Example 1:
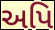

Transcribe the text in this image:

અપિ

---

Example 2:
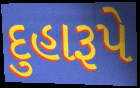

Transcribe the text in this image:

દુહારૂપે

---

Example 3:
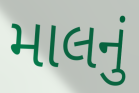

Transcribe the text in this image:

માલનું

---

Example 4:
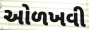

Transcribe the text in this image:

ઓળખવી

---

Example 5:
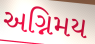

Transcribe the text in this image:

અગ્નિમય